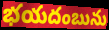
భయదంబును